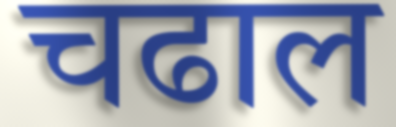
चढाल